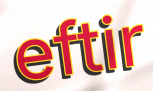
eftir